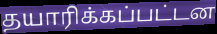
தயாரிக்கப்பட்டன